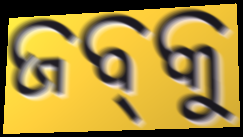
ଜବ୍‍କୁ